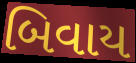
બિવાય